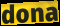
dona